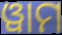
ୱାମ